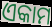
ଏକାମ